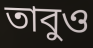
তাবুও